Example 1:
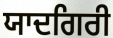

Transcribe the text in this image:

ਯਾਦਗਿਰੀ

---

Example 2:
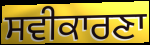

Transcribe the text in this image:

ਸਵੀਕਾਰਣਾ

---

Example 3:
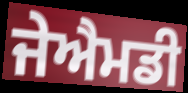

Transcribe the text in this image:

ਜੇਐਮਡੀ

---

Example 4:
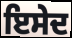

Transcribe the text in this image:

ਇਸੇਦ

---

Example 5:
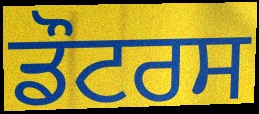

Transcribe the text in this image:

ਡੌਟਰਸ